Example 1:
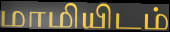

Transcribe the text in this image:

மாமியிடம்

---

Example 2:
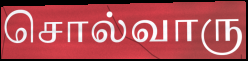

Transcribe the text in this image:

சொல்வாரு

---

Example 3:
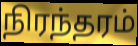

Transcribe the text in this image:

நிரந்தரம்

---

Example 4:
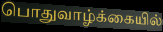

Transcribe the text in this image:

பொதுவாழ்க்கையில்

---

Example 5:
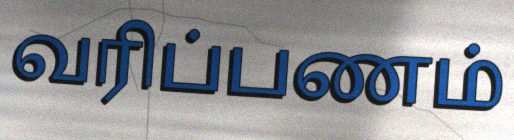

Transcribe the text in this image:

வரிப்பணம்